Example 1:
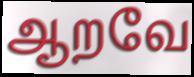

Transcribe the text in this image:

ஆறவே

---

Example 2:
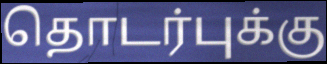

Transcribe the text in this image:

தொடர்புக்கு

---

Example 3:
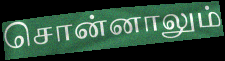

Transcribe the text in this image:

சொன்னாலும்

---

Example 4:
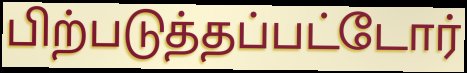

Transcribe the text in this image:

பிற்படுத்தப்பட்டோர்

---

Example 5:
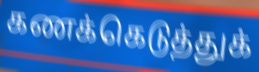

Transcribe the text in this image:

கணக்கெடுத்துக்